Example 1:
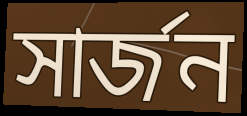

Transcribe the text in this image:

সার্জন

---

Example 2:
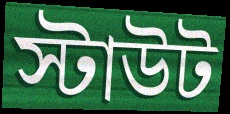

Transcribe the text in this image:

স্টাউট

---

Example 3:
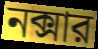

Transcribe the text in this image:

নক্সার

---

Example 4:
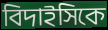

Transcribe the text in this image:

বিদাইসিকে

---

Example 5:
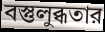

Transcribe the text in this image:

বস্তুলুব্ধতার